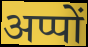
अप्पों